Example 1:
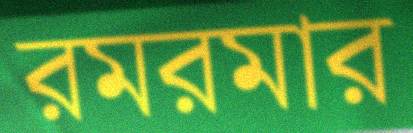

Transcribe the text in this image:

রমরমার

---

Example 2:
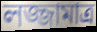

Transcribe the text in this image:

লজ্জামাত্র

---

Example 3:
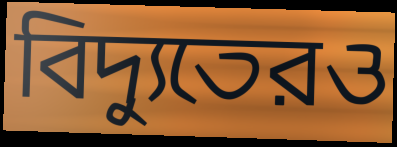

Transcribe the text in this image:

বিদ্যুতেরও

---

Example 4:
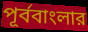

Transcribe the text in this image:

পূর্ববাংলার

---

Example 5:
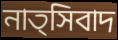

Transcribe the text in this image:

নাত্সিবাদ